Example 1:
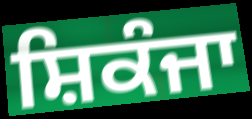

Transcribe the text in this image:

ਸ਼ਿਕੰਜਾ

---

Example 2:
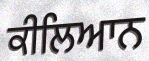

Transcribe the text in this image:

ਕੀਲਿਆਨ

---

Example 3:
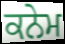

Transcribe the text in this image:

ਕਨੇਮ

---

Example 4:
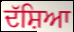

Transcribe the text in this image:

ਦੱਸ਼ਿਆ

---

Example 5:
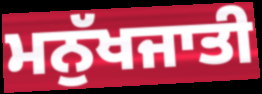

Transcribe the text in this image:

ਮਨੁੱਖਜਾਤੀ